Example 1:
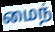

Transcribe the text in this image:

மைந்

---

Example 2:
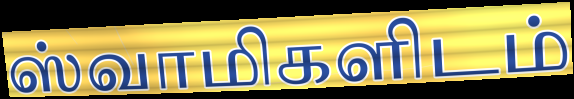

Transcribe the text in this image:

ஸ்வாமிகளிடம்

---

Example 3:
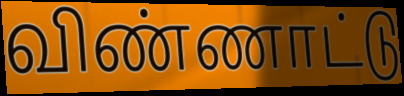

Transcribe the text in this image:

விண்ணாட்டு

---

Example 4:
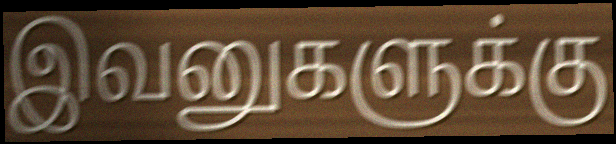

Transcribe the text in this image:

இவனுகளுக்கு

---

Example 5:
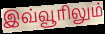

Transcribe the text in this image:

இவ்வூரிலும்